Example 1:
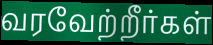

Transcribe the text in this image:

வரவேற்றீர்கள்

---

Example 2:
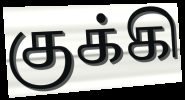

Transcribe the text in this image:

குக்கி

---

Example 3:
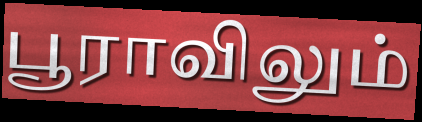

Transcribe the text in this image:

பூராவிலும்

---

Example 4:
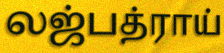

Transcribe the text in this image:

லஜ்பத்ராய்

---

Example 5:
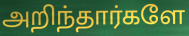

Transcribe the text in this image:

அறிந்தார்களே